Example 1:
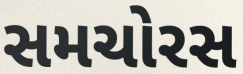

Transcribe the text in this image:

સમચોરસ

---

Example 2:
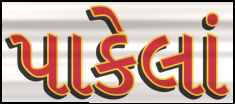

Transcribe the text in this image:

પાકેલાં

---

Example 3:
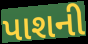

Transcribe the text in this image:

પાશની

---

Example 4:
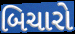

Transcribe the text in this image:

બિચારો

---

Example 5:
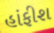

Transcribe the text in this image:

હાંફીશ